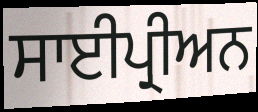
ਸਾਈਪ੍ਰੀਅਨ